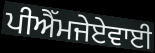
ਪੀਐੱਮਜੇਏਵਾਈ